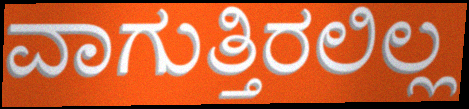
ವಾಗುತ್ತಿರಲಿಲ್ಲ